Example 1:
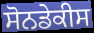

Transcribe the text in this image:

ਸੋਨਡੇਕੀਸ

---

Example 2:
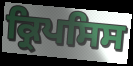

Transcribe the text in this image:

ਕ੍ਰਿਪਸਿਸ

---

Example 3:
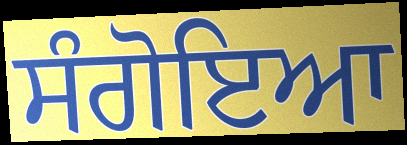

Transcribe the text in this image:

ਸੰਗੋਇਆ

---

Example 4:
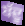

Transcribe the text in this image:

ਬੱਦੂ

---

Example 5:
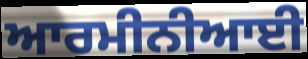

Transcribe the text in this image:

ਆਰਮੀਨੀਆਈ